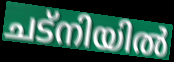
ചട്നിയിൽ